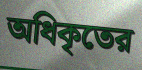
অধিকৃতের